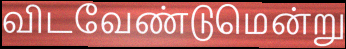
விடவேண்டுமென்று